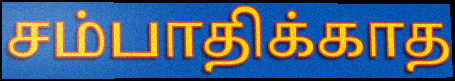
சம்பாதிக்காத